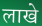
लाखे